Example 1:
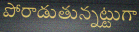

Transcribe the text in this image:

పోరాడుతున్నట్టుగా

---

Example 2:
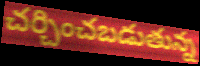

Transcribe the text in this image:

చర్చించబడుతున్న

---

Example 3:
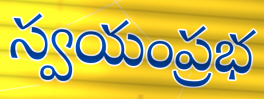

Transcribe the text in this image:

స్వయంప్రభ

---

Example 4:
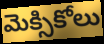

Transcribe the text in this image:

మెక్సికోలు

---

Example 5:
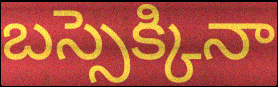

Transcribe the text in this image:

బస్సెక్కినా